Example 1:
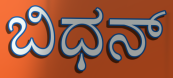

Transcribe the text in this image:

ಬಿಧನ್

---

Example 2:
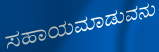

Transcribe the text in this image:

ಸಹಾಯಮಾಡುವನು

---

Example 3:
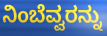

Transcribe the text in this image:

ನಿಂಬೆವ್ವರನ್ನು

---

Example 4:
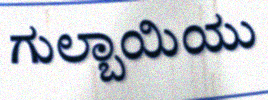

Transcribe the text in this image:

ಗುಲ್ಬಾಯಿಯು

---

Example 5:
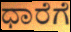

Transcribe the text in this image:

ಧಾರೆಗೆ